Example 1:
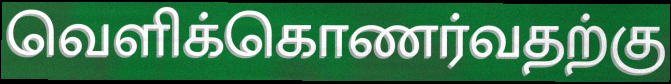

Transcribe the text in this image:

வெளிக்கொணர்வதற்கு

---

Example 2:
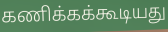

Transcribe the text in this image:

கணிக்கக்கூடியது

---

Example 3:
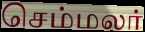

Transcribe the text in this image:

செம்மலர்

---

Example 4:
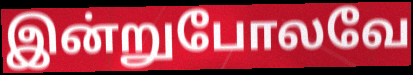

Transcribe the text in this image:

இன்றுபோலவே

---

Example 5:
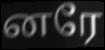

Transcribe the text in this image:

னரே